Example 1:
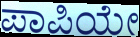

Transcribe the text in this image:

ಪಾಪಿಯೇ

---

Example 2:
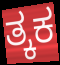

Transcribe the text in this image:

ತ್ಕಕ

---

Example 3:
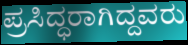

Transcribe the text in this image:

ಪ್ರಸಿದ್ಧರಾಗಿದ್ದವರು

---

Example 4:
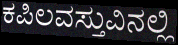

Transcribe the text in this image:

ಕಪಿಲವಸ್ತುವಿನಲ್ಲಿ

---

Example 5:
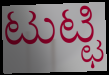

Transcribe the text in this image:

ಟುಟ್ಟಿ